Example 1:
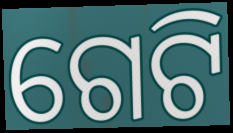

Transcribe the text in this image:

ଗେଟି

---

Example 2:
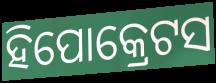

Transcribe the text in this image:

ହିପୋକ୍ରେଟସ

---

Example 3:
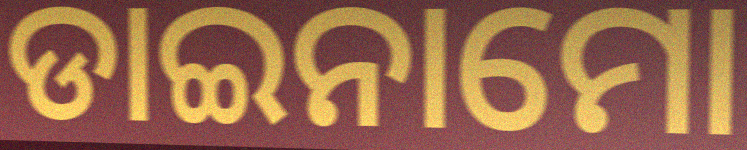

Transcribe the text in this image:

ଡାଇନାମୋ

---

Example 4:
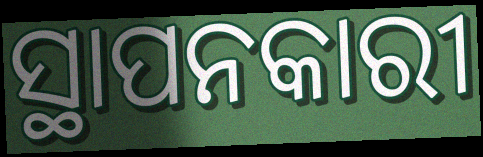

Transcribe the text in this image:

ସ୍ଥାପନକାରୀ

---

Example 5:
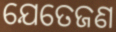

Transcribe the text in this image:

ଯେତେଜଣ